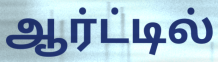
ஆர்ட்டில்